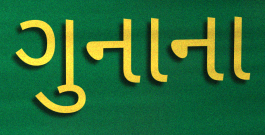
ગુનાના